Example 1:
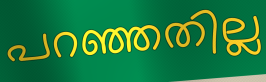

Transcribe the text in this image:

പറഞ്ഞതില്ല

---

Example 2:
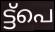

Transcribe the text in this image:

ട്ട്പെ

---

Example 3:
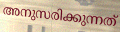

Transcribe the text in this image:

അനുസരിക്കുന്നത്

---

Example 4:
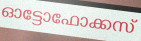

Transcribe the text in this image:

ഓട്ടോഫോക്കസ്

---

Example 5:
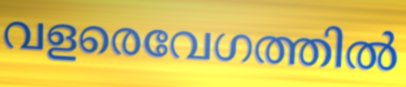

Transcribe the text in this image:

വളരെവേഗത്തിൽ